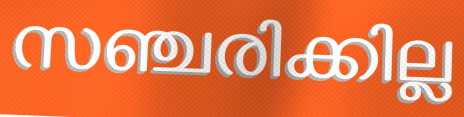
സഞ്ചരിക്കില്ല